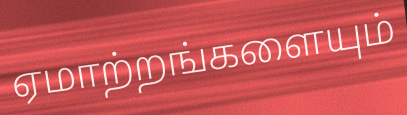
ஏமாற்றங்களையும்